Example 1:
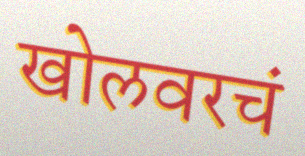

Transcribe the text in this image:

खोलवरचं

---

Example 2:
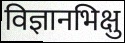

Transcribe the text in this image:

विज्ञानभिक्षु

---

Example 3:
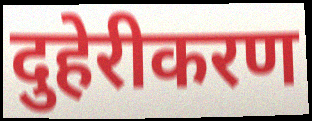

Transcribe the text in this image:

दुहेरीकरण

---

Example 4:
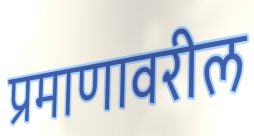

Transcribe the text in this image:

प्रमाणावरील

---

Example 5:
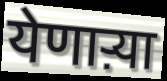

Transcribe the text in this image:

येणाऱ्‍या